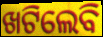
ଖଟିଲେବି